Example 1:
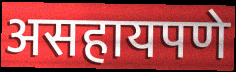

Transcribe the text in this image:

असहायपणे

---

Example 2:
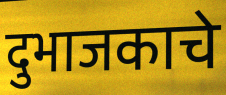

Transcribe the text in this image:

दुभाजकाचे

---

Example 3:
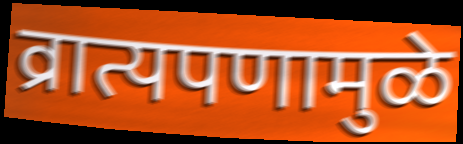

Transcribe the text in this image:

व्रात्यपणामुळे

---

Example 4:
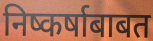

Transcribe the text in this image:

निष्कर्षाबाबत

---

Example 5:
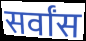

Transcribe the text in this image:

सर्वांस